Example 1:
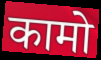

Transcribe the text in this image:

कामो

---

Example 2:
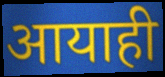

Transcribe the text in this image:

आयाही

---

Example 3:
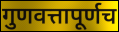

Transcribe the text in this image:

गुणवत्तापूर्णच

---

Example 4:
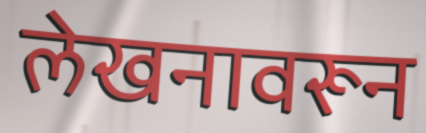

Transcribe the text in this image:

लेखनावरून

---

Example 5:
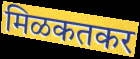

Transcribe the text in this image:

मिळकतकर